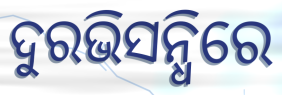
ଦୁରଭିସନ୍ଧିରେ